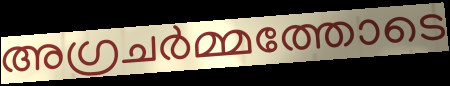
അഗ്രചർമ്മത്തോടെ